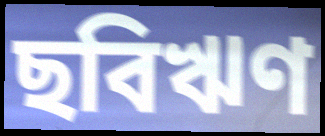
ছবিঋণ